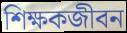
শিক্ষকজীবন